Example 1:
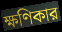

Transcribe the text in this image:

ক্ষণিকার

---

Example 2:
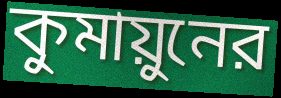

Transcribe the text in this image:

কুমায়ুনের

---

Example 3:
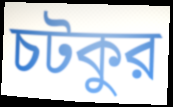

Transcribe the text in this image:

চটকুর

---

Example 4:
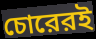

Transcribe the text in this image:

চোরেরই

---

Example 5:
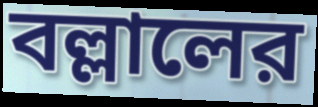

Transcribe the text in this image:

বল্লালের